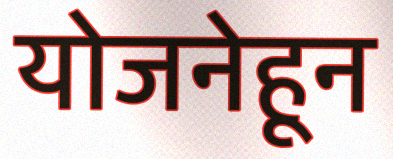
योजनेहून